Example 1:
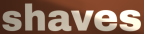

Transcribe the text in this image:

shaves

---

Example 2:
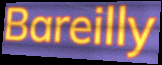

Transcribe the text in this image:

Bareilly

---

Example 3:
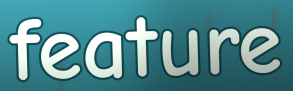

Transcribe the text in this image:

feature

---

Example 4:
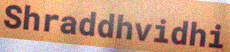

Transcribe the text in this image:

Shraddhvidhi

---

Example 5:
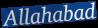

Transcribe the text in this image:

Allahabad